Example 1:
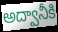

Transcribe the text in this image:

అద్వానీకి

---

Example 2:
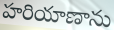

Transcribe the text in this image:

హరియాణాను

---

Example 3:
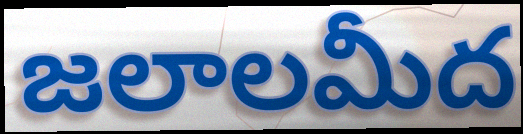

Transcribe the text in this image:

జలాలమీద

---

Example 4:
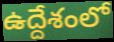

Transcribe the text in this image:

ఉద్దేశంలో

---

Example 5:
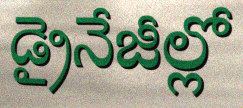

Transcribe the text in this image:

డ్రైనేజీల్లో